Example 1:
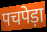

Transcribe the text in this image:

पचपेड़ा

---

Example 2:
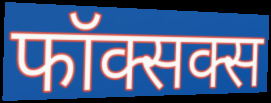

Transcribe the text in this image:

फॉक्सक्स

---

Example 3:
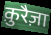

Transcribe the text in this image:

क़ुरैज़ा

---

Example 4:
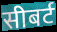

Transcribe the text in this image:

सीबर्ट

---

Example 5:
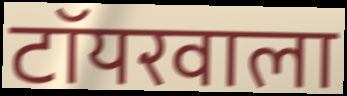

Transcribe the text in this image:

टॉयरवाला